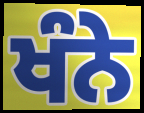
ਖੰਨੇ